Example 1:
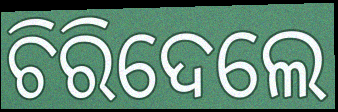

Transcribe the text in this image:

ଚିରିଦେଲେ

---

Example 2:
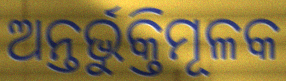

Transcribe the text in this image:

ଅନ୍ତର୍ଭୁକ୍ତିମୂଳକ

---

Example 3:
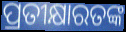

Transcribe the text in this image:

ପ୍ରତୀକ୍ଷାରତଙ୍କ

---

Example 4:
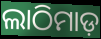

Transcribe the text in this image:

ଲାଠିମାଡ଼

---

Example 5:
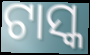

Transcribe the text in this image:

ଟାସ୍କ